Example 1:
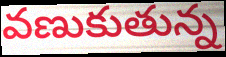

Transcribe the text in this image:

వణుకుతున్న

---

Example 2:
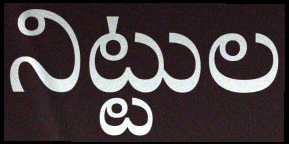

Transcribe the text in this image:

నిట్టుల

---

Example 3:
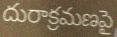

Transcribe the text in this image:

దురాక్రమణపై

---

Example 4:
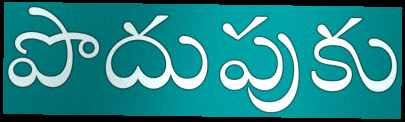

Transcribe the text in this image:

పొదుపుకు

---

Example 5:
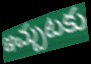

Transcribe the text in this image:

ఇచ్చుటకు